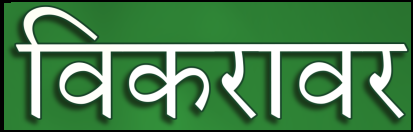
विकरावर